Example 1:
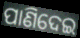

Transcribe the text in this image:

ପାଣିଦେଇ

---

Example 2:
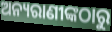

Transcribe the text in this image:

ଅନ୍ୟରାଣୀଙ୍କଠାରୁ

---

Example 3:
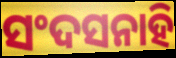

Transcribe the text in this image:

ସଂଦସନାହି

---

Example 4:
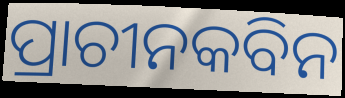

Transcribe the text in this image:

ପ୍ରାଚୀନକବିନ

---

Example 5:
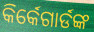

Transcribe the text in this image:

କିର୍କେଗାର୍ଡଙ୍କ